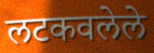
लटकवलेले